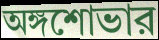
অঙ্গশোভার